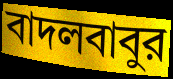
বাদলবাবুর